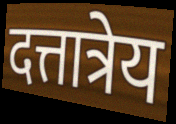
दत्तात्रेय